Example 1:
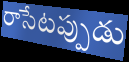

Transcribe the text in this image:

రాసేటప్పుడు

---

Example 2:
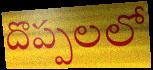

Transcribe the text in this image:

దొప్పలలో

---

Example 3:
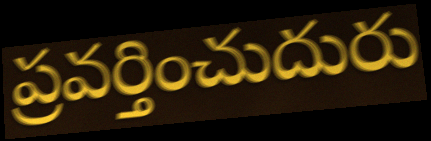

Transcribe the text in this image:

ప్రవర్తించుదురు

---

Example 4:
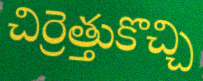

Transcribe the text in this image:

చిర్రెత్తుకొచ్చి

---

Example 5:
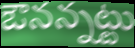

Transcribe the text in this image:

ఔనన్నట్టు